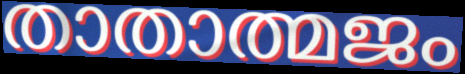
താതാത്മജം